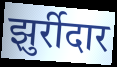
झुर्रीदार